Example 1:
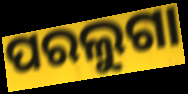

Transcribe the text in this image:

ପରଲୁଗା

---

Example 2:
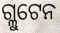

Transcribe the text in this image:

ଗ୍ଲୁଟେନ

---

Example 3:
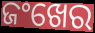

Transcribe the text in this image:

ଜଂଖେର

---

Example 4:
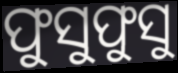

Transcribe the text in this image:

ଫୁସୁଫୁସୁ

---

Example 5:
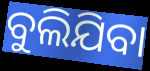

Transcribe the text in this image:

ବୁଲିଯିବା